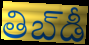
తిబ్‌డీ